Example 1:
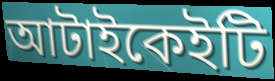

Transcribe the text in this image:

আটাইকেইটি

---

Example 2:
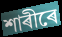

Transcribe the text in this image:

শাৰীৰে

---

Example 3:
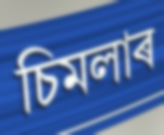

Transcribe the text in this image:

চিমলাৰ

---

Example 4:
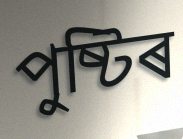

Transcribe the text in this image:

পুষ্টিৰ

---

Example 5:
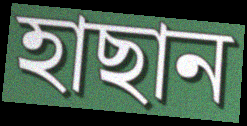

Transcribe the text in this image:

হাছান